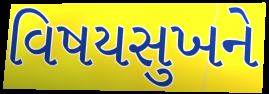
વિષયસુખને